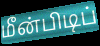
மீன்பிடிப்